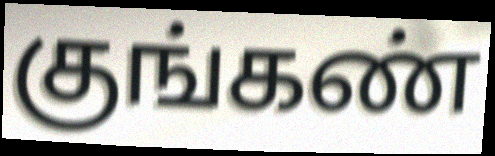
குங்கண்